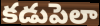
కడుపెలా